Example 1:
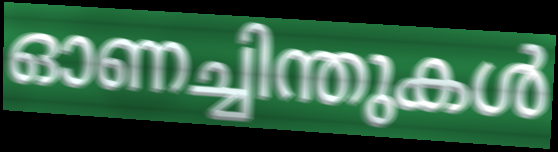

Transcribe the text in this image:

ഓണച്ചിന്തുകൾ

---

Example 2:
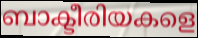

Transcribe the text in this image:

ബാക്ടീരിയകളെ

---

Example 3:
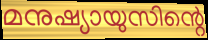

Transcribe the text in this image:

മനുഷ്യായുസിന്റെ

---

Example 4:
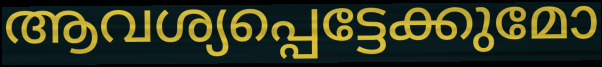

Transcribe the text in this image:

ആവശ്യപ്പെട്ടേക്കുമോ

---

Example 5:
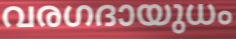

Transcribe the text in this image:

വരഗദായുധം